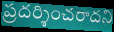
ప్రదర్శించరాదని